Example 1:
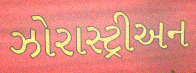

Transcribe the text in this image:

ઝોરાસ્ટ્રીઅન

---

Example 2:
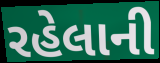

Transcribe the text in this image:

રહેલાની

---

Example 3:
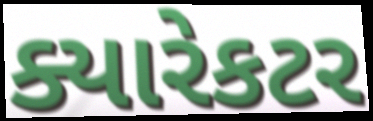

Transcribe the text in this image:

ક્યારેકટર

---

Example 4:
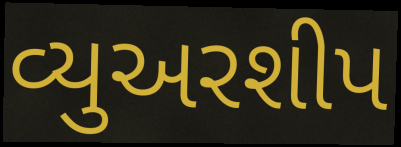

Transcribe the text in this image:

વ્યુઅરશીપ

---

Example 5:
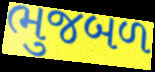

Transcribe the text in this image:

ભુજબળ